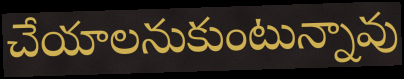
చేయాలనుకుంటున్నావు